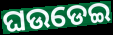
ଘଉଡେଇ